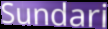
Sundari